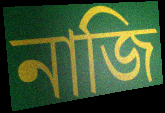
নাজি